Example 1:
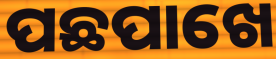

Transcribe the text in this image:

ପଛପାଖେ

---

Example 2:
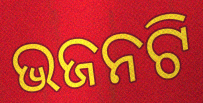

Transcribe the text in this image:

ଭଜନଟି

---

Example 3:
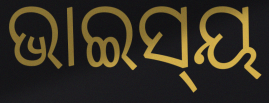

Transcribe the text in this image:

ଭାଇସ୍‌ୟ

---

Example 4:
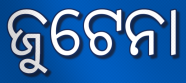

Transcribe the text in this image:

ଜୁଟେନା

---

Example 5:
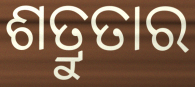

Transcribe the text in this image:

ଶତ୍ରୁତାର